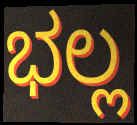
ಭಲ್ಲ